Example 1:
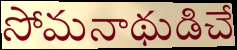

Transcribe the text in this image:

సోమనాథుడిచే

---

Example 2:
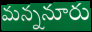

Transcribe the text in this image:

మన్ననూరు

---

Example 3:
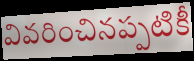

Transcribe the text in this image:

వివరించినప్పటికీ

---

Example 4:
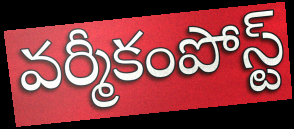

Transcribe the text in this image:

వర్మీకంపోస్ట్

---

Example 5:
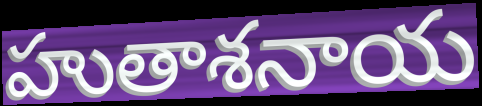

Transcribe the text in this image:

హుతాశనాయ